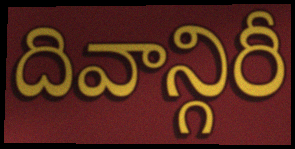
దివాన్గిరీ